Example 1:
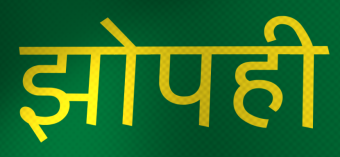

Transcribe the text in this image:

झोपही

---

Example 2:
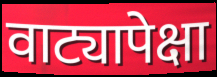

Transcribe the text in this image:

वाट्यापेक्षा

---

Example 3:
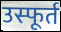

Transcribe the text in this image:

उस्फूर्त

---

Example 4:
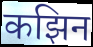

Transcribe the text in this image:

कझिन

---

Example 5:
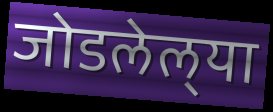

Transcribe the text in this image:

जोडलेल्या